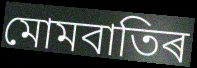
মোমবাতিৰ